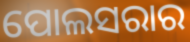
ପୋଲସରାର